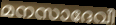
മനസാദേവീ